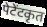
पेटेंटकृत